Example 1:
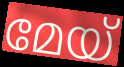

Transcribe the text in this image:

മേയ്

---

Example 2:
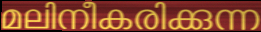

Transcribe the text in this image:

മലിനീകരിക്കുന്ന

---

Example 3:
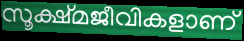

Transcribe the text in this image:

സൂക്ഷ്മജീവികളാണ്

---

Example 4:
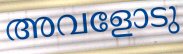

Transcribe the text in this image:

അവളോടു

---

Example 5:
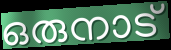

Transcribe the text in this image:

ഒരുനാട്